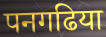
पनगढिया